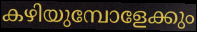
കഴിയുമ്പോളേക്കും